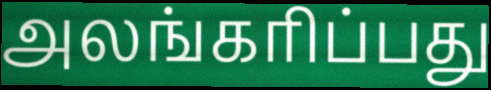
அலங்கரிப்பது